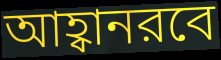
আহ্বানরবে